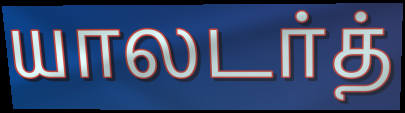
யாலடர்த்